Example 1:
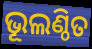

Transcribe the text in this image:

ଭୂଲଣ୍ଠିତ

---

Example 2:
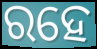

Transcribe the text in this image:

ରହେ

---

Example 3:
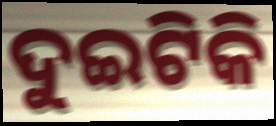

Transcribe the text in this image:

ଦୁଇଟିକି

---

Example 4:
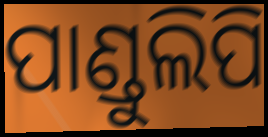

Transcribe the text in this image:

ପାଣ୍ଡୁଲିପି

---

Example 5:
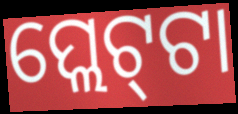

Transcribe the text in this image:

ପ୍ଲେଟ୍‍ଟା